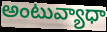
అంటువ్యాధా